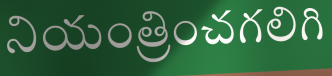
నియంత్రించగలిగి